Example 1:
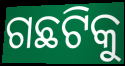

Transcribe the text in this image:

ଗଛଟିକୁ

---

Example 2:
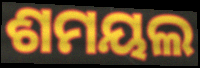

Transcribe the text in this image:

ଶମୟଲ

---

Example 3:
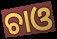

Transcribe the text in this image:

ଚାଓ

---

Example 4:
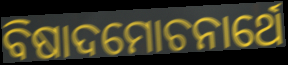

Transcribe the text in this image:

ବିଷାଦମୋଚନାର୍ଥେ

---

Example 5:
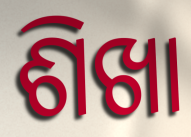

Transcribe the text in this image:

ଶିଖା